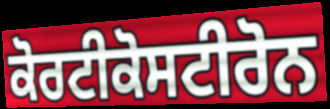
ਕੋਰਟੀਕੋਸਟੀਰੋਨ